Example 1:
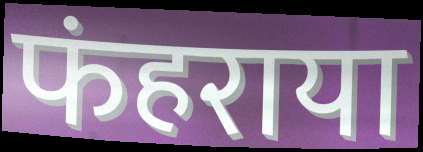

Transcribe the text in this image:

फंहराया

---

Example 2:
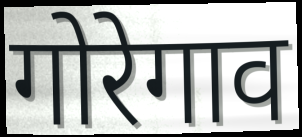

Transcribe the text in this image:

गोरेगाव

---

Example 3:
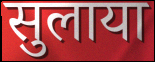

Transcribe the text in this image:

सुलाया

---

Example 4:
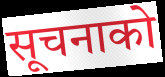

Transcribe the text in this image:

सूचनाको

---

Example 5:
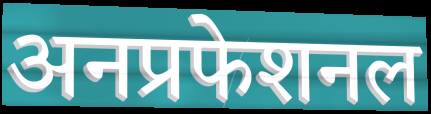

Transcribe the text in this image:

अनप्रफेशनल